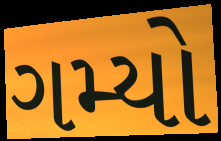
ગમ્યો